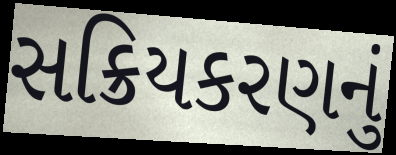
સક્રિયકરણનું